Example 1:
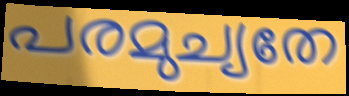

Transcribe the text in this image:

പരമുച്യതേ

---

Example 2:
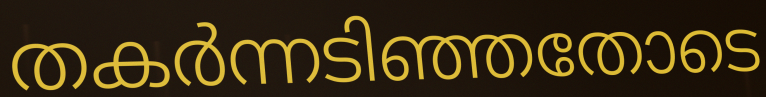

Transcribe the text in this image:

തകർന്നടിഞ്ഞതോടെ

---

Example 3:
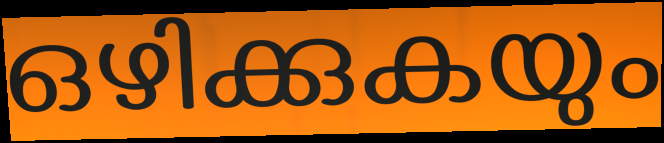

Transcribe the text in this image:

ഒഴിക്കുകയും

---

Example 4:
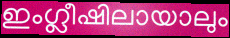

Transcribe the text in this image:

ഇംഗ്ലീഷിലായാലും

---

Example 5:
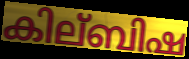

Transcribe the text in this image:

കില്ബിഷ